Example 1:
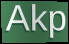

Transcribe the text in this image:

Akp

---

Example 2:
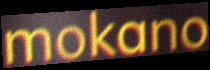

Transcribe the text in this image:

mokano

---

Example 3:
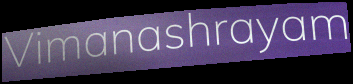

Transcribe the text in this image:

Vimanashrayam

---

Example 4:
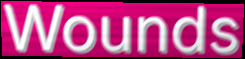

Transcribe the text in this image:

Wounds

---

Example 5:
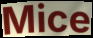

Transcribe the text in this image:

Mice